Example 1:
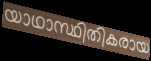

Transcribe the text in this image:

യാഥാസ്ഥിതികരായ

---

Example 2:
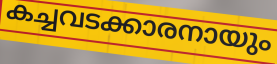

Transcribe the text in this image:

കച്ചവടക്കാരനായും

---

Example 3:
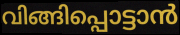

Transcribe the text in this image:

വിങ്ങിപ്പൊട്ടാൻ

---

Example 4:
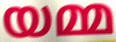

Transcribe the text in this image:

യമ്മ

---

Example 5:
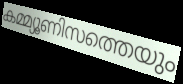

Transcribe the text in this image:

കമ്മ്യൂണിസത്തെയും